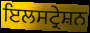
ਇਲਸਟ੍ਰੇਸ਼ਨ